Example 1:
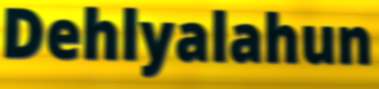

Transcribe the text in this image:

Dehlyalahun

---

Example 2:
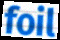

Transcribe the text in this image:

foil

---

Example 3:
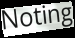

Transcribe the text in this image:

Noting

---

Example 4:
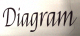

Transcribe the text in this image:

Diagram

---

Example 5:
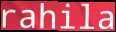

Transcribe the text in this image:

rahila